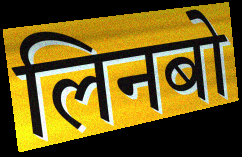
लिनबो